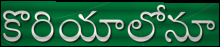
కొరియాలోనూ